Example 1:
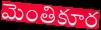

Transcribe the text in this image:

మెంతికూర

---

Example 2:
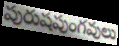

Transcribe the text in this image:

పురుషపుంగవులు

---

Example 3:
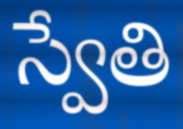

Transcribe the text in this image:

స్వేతి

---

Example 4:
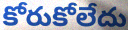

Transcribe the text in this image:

కోరుకోలేదు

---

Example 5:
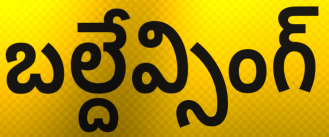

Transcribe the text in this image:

బల్దేవ్సింగ్